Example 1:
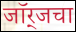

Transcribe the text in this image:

जॉर्जचा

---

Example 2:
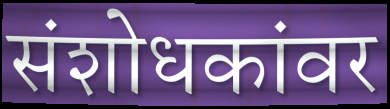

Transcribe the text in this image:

संशोधकांवर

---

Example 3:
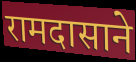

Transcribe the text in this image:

रामदासाने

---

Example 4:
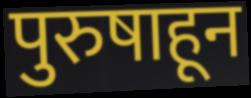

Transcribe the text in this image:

पुरुषाहून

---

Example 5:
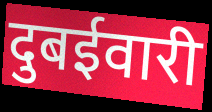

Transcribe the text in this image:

दुबईवारी